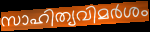
സാഹിത്യവിമർശം